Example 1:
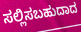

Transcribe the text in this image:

ಸಲ್ಲಿಸಬಹುದಾದ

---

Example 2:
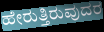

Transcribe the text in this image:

ಹೇರುತ್ತಿರುವುದರ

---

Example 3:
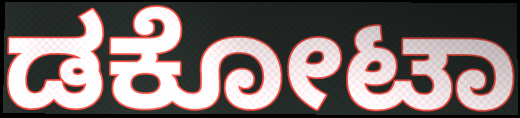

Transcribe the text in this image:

ಡಕೋಟಾ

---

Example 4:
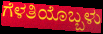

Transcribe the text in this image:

ಗೆಳತಿಯೊಬ್ಬಳು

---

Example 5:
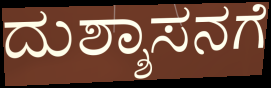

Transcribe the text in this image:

ದುಶ್ಶಾಸನಗೆ